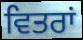
ਵਿਤਰਾਂ